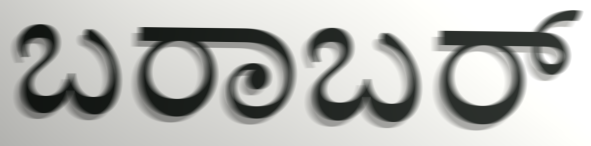
ಬರಾಬರ್